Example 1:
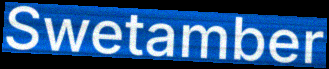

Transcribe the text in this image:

Swetamber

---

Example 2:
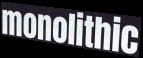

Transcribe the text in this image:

monolithic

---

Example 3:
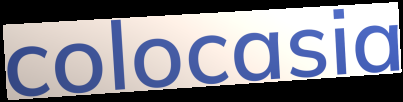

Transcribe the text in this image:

colocasia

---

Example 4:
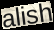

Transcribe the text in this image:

alish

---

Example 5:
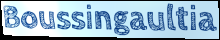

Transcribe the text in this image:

Boussingaultia